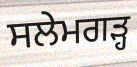
ਸਲੇਮਗੜ੍ਹ